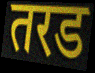
तरड